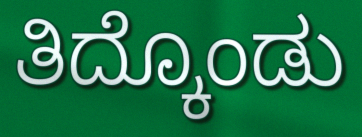
ತಿದ್ಕೊಂಡು